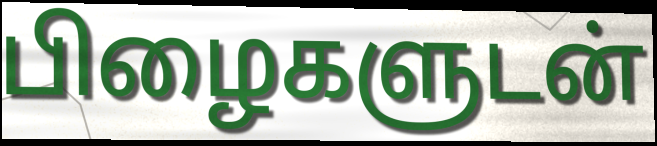
பிழைகளுடன்